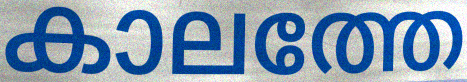
കാലത്തേ